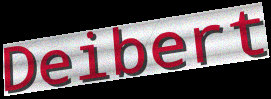
Deibert